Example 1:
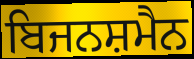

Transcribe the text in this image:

ਬਿਜਨਸ਼ਮੈਨ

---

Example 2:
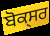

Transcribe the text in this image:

ਬੋਕ੍ਸਰ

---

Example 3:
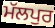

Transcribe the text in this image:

ਮੱਲਪੁਰ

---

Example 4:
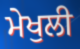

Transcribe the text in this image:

ਮੇਖੁਲੀ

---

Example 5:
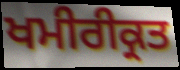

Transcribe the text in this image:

ਖਮੀਰੀਕ੍ਰਤ